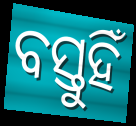
ବସ୍ତୁହିଁ